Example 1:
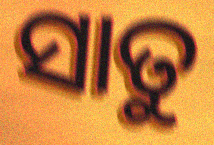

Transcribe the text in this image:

ସାତୁ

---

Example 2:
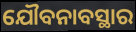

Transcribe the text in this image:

ଯୌବନାବସ୍ଥାର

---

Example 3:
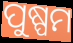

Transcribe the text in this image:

ପୁଷ୍ପମ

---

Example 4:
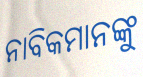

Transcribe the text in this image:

ନାବିକମାନଙ୍କୁ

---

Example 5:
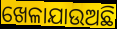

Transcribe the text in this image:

ଖେଳାଯାଉଅଛି